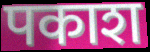
पकाश